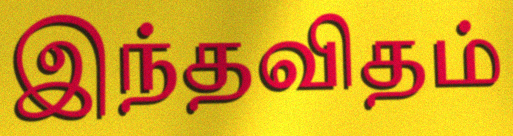
இந்தவிதம்